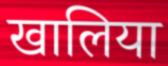
खालिया